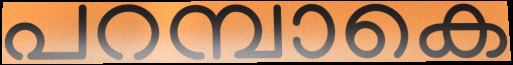
പറമ്പാകെ